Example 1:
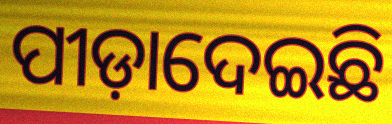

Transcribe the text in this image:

ପୀଡ଼ାଦେଇଛି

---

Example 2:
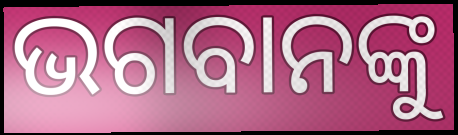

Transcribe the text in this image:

ଭଗବାନଙ୍କୁ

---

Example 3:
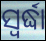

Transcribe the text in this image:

ସ୍ଵର୍ଦ୍ଧା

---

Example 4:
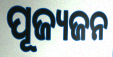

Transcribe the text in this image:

ପୂଜ୍ୟଜନ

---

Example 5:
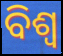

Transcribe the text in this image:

ବିଶ୍ୱ